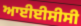
ਆਈਈਸੀਸੀ